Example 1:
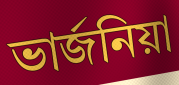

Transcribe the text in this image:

ভাৰ্জনিয়া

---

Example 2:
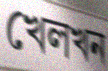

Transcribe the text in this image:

খেলখন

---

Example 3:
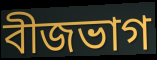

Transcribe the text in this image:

বীজভাগ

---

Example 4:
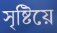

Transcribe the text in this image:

সৃষ্টিয়ে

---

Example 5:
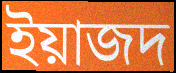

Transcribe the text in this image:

ইয়াজদ